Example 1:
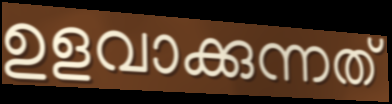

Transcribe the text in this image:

ഉളവാക്കുന്നത്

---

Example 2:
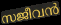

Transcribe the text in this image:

സജീവൻ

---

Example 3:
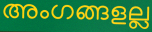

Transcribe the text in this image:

അംഗങ്ങളല്ല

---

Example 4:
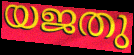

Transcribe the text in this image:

യജതു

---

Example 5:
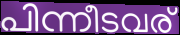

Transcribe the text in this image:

പിന്നീടവര്